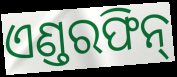
ଏଣ୍ଡରଫିନ୍